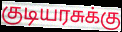
குடியரசுக்கு